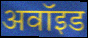
अवॉइड